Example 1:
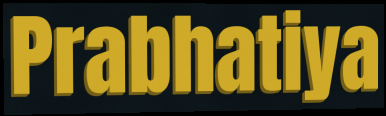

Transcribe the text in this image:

Prabhatiya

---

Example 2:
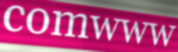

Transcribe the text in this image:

comwww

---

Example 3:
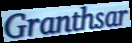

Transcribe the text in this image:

Granthsar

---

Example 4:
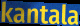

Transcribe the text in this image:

kantala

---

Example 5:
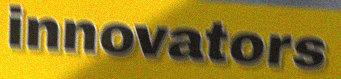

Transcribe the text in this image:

innovators